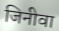
जिनीवा